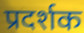
प्रदर्शक